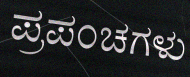
ಪ್ರಪಂಚಗಳು